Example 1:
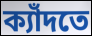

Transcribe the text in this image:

ক্যাঁদতে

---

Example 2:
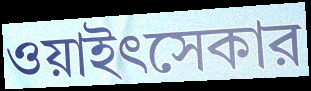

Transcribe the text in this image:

ওয়াইৎসেকার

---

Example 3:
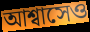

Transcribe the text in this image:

আশ্বাসেও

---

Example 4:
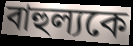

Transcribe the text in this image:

বাহুল্যকে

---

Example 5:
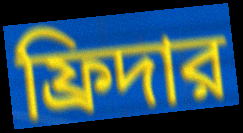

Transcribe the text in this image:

ফ্রিদার